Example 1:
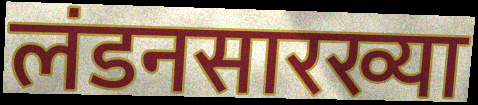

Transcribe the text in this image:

लंडनसारख्या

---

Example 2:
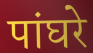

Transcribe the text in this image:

पांघरे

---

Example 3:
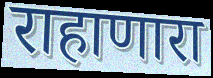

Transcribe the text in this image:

राहाणारा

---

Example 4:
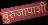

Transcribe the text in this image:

बुरुजापाशी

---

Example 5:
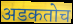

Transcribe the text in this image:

अडकतोच